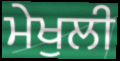
ਮੇਖੁਲੀ